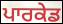
ਪਾਰਕੇਡ